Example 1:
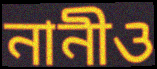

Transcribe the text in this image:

নানীও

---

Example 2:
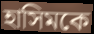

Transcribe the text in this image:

হাসিমকে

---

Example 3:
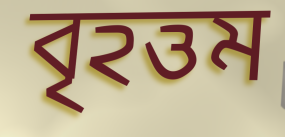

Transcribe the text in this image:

বৃহত্তম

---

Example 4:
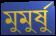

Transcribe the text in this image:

মুমুর্ষু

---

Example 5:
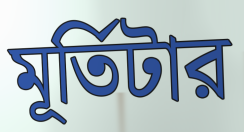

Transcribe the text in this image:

মূর্তিটার